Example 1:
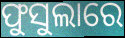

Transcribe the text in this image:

ଫୁସୁଲାରେ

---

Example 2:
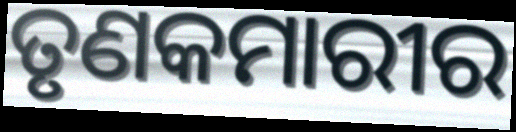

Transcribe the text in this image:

ତୃଣକମାରୀର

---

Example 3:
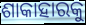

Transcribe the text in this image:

ଶାକାହାରକୁ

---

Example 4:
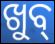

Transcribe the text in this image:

ଖୁବ୍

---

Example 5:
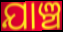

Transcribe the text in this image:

ଯାଞ୍ଚ